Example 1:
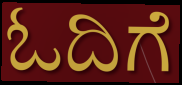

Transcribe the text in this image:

ಓದಿಗೆ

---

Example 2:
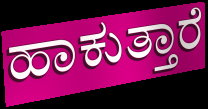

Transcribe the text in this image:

ಹಾಕುತ್ತಾರೆ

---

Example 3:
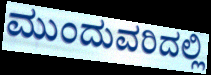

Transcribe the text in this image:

ಮುಂದುವರಿದಲ್ಲಿ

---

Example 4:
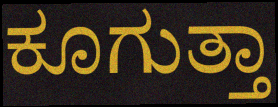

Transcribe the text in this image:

ಕೂಗುತ್ತಾ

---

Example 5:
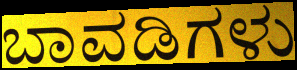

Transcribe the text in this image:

ಬಾವಡಿಗಳು